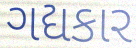
ગદ્યકાર